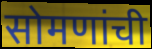
सोमणांची